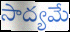
సాద్యమే